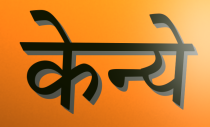
केन्ये